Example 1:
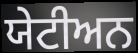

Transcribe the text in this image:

ਯੇਟੀਅਨ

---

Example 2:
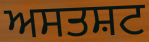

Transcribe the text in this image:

ਅਸਤਸ਼ਟ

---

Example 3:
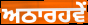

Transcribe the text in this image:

ਅਠਾਰਹਵੇਂ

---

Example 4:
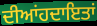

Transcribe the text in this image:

ਦੀਆਂਹਦਾਇਤਾਂ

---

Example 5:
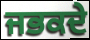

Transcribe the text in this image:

ਜਭਕਦੇ